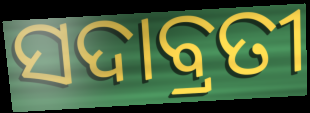
ସଦାବ୍ରତୀ